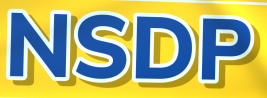
NSDP